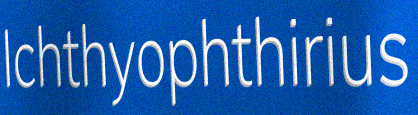
Ichthyophthirius